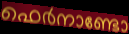
ഫെർനാണ്ടോ